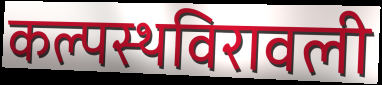
कल्पस्थविरावली